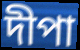
দীপা